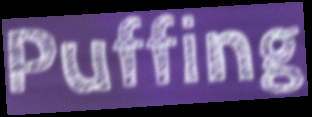
Puffing